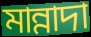
মান্নাদা